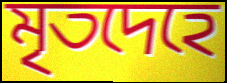
মৃতদেহে